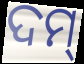
ଦମ୍